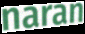
naran